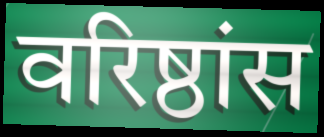
वरिष्ठांस